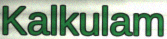
Kalkulam